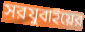
সরযুবাইয়ের